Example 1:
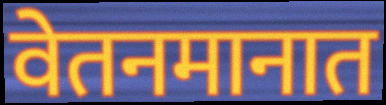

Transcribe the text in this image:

वेतनमानात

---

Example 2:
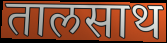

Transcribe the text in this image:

तालसाथ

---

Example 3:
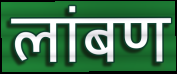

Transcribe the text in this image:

लांबण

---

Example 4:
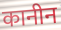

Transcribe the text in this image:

कानीन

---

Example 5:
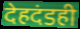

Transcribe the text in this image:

देहदंडही